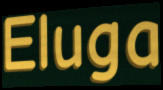
Eluga